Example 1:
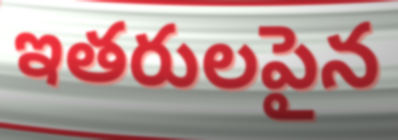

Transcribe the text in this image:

ఇతరులపైన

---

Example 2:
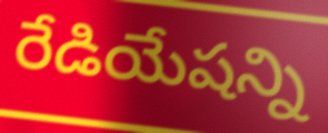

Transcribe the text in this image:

రేడియేషన్ని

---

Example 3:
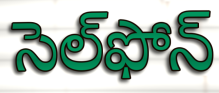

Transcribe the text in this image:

సెల్‌ఫోన్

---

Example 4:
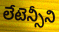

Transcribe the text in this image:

లేటెన్సీని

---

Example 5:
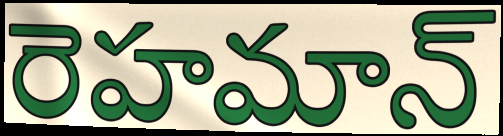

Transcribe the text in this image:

రెహమాన్